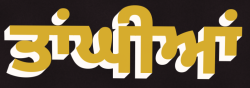
ਤਾਂਘੀਆਂ